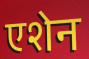
एशेन